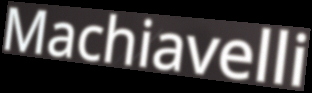
Machiavelli